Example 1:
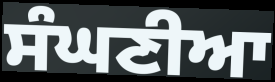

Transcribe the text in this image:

ਸੰਘਣੀਆ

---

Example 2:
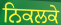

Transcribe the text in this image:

ਨਿਕਲਕੇ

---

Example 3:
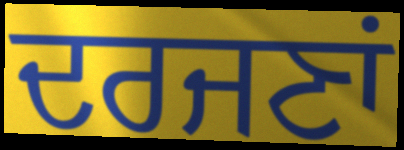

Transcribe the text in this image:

ਦਰਜਣਾਂ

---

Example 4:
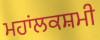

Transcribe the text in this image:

ਮਹਾਂਲਕਸ਼ਮੀ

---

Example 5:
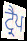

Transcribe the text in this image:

ਟ੍ਰੈਪ